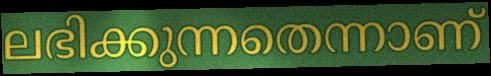
ലഭിക്കുന്നതെന്നാണ്